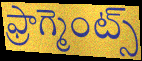
ఫ్రాగ్మెంట్స్